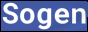
Sogen